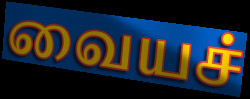
வையச்